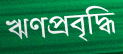
ঋণপ্রবৃদ্ধি